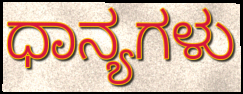
ಧಾನ್ಯಗಳು